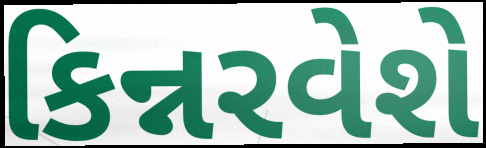
કિન્નરવેશે